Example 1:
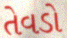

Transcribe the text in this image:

તેવડો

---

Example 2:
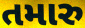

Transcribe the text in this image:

તમારુ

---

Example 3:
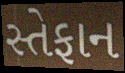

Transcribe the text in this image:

સ્તેફાન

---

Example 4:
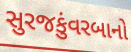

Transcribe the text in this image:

સુરજકુંવરબાનો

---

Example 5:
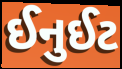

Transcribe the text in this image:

ઈનુઈટ